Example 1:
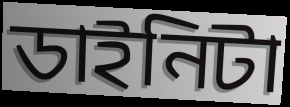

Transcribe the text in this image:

ডাইনিটা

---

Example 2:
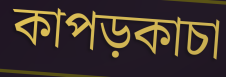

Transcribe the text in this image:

কাপড়কাচা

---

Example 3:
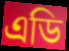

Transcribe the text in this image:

এডি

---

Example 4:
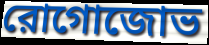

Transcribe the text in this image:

রোগোজোভ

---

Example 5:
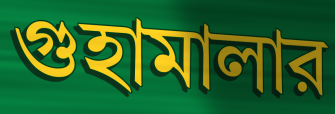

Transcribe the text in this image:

গুহামালার